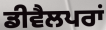
ਡੀਵੈਲਪਰਾਂ